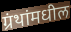
ग्रंथांमधील